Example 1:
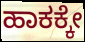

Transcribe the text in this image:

ಹಾಕಕ್ಕೇ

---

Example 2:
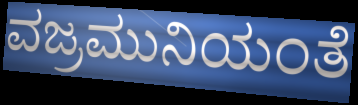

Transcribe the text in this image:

ವಜ್ರಮುನಿಯಂತೆ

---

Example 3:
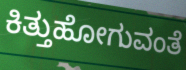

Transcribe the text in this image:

ಕಿತ್ತುಹೋಗುವಂತೆ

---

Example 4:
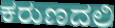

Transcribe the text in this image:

ಕರುಣದಲಿ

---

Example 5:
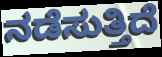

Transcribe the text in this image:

ನಡೆಸುತ್ತಿದೆ